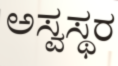
ಅಸ್ವಸ್ಥರ